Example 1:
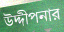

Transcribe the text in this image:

উদ্দীপনার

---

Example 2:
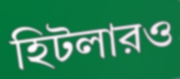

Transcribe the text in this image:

হিটলারও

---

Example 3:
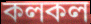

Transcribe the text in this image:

কলকল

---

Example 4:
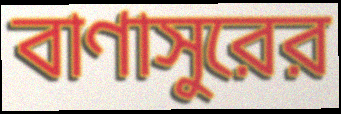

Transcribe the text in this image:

বাণাসুরের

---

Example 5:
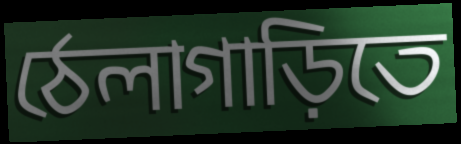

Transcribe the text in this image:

ঠেলাগাড়িতে